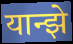
यान्झे